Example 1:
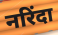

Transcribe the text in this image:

नरिंदा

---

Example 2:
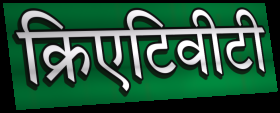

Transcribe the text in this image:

क्रिएटिवीटी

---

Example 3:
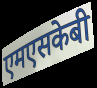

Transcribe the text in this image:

एमएसकेबी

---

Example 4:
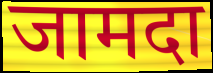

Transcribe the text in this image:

जामदा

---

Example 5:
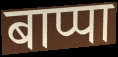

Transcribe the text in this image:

बाप्पा